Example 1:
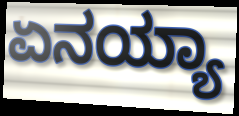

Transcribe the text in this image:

ಏನಯ್ಯಾ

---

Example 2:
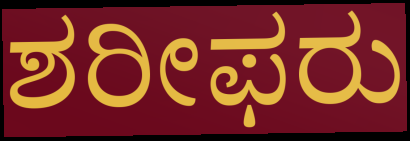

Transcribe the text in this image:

ಶರೀಫರು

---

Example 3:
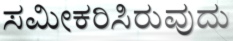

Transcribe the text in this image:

ಸಮೀಕರಿಸಿರುವುದು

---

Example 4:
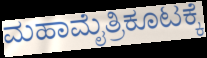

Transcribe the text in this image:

ಮಹಾಮೈತ್ರಿಕೂಟಕ್ಕೆ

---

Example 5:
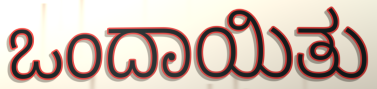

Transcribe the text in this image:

ಒಂದಾಯಿತು